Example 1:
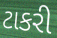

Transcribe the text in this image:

ટાકરી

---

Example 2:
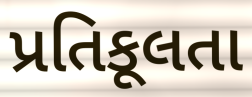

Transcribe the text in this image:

પ્રતિકૂલતા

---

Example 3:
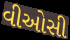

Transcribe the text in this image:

વીઓસી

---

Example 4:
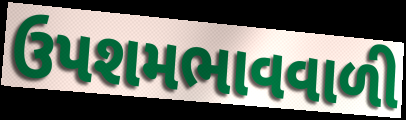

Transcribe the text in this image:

ઉપશમભાવવાળી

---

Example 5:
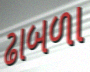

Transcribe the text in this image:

ઢાબળા